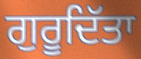
ਗੁਰੂਦਿੱਤਾ